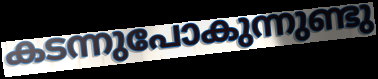
കടന്നുപോകുന്നുണ്ടു